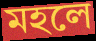
মহলে